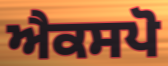
ਐਕਸਪੋ